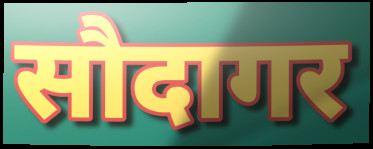
सौदागर